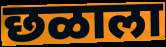
छळाला